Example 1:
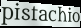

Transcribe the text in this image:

pistachio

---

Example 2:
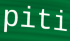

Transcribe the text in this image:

piti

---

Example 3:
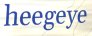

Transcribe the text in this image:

heegeye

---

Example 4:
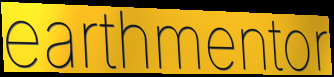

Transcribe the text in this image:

earthmentor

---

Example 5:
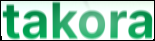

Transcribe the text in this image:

takora